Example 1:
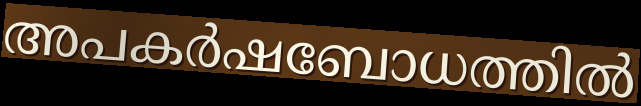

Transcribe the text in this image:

അപകർഷബോധത്തിൽ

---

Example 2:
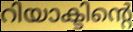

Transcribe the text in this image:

റിയാക്ടിന്റെ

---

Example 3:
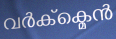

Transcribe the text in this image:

വർക്ക്മെൻ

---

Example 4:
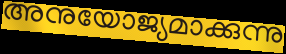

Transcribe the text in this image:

അനുയോജ്യമാക്കുന്നു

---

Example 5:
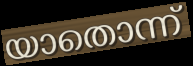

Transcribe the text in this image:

യാതൊന്ന്